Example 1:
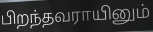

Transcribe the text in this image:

பிறந்தவராயினும்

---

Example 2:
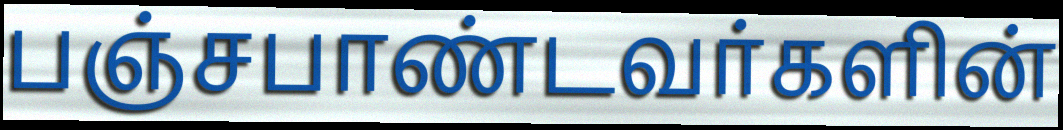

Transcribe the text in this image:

பஞ்சபாண்டவர்களின்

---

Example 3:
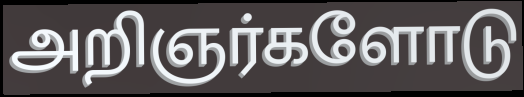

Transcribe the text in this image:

அறிஞர்களோடு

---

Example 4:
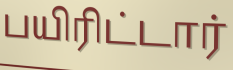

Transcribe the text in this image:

பயிரிட்டார்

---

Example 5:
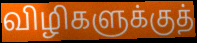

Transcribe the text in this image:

விழிகளுக்குத்